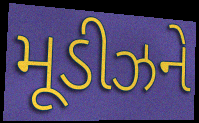
મૂડીઝને